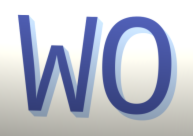
WO